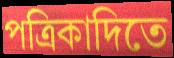
পত্রিকাদিতে